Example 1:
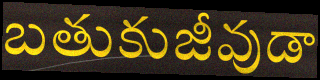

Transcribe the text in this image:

బతుకుజీవుడా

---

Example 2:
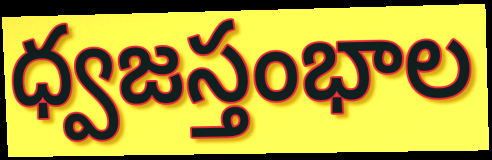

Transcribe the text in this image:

ధ్వజస్తంభాల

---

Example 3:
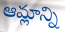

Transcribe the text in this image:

ఆమ్లాన్ని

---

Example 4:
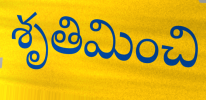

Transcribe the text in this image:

శృతిమించి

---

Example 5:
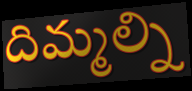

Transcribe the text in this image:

దిమ్మల్ని